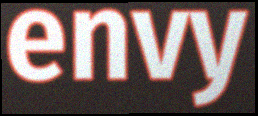
envy